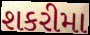
શકરીમા